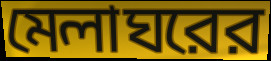
মেলাঘরের